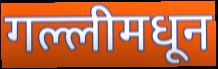
गल्लीमधून